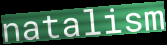
natalism